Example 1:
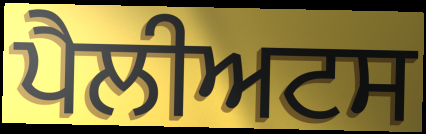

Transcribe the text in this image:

ਪੈਲੀਅਟਸ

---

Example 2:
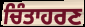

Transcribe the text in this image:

ਚਿੰਤਾਹਰਣ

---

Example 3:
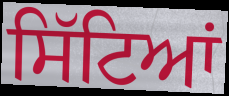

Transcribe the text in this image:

ਸਿੱਟਿਆਂ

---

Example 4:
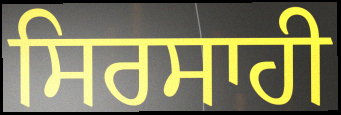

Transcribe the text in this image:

ਸਿਰਸਾਹੀ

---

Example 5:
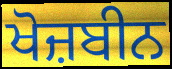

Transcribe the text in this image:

ਖੋਜ਼ਬੀਨ